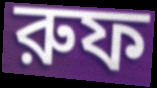
রুফ